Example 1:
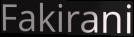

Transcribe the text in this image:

Fakirani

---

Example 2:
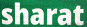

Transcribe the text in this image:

sharat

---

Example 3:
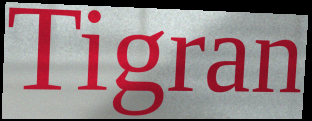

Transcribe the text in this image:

Tigran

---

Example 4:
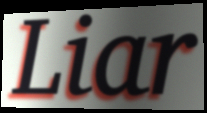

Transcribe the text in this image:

Liar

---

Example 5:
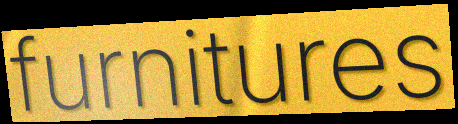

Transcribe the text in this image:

furnitures